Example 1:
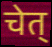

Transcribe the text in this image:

चेत्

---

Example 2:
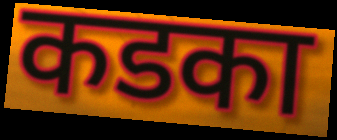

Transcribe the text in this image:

कडका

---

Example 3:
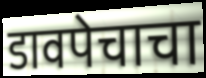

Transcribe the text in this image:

डावपेचाचा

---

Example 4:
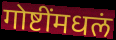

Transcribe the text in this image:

गोष्टींमधलं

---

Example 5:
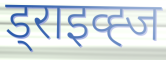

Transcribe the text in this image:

ड्राइव्ह्ज